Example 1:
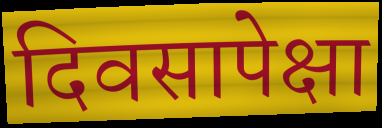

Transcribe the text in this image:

दिवसापेक्षा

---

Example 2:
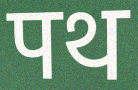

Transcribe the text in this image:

पथ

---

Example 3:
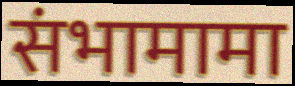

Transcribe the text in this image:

संभामामा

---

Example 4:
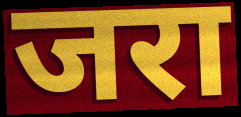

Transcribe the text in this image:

जरा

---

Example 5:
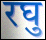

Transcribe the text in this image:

रघु